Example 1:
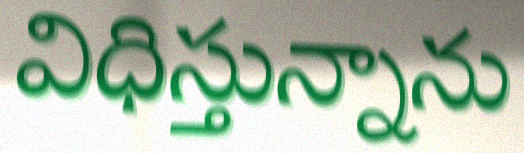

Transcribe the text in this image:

విధిస్తున్నాను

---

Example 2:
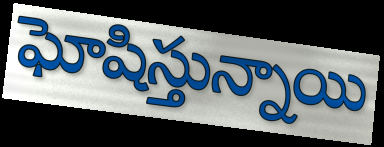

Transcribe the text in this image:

ఘోషిస్తున్నాయి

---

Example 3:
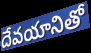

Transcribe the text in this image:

దేవయానితో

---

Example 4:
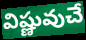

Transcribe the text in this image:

విష్ణువుచే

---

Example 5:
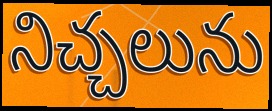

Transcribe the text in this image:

నిచ్చలును